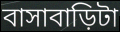
বাসাবাড়িটা